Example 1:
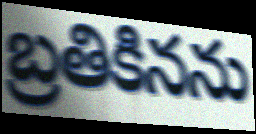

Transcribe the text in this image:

బ్రతికినను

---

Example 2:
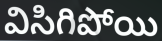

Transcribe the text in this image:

విసిగిపోయి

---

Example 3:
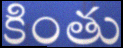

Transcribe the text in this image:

కింతు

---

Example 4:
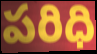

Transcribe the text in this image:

పరిధి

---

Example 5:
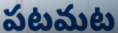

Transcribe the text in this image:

పటమట